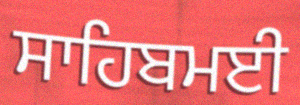
ਸਾਹਿਬਮਈ